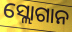
ସ୍ଲୋଗାନ